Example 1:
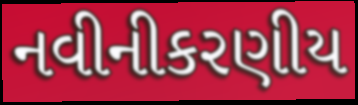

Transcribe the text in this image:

નવીનીકરણીય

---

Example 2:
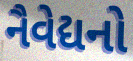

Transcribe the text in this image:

નૈવેદ્યનો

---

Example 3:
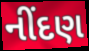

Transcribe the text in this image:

નીંદણ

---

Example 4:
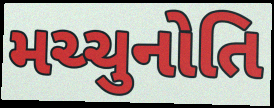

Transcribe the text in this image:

મચ્ચુનોતિ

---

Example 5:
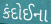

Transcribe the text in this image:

કંદોઈના